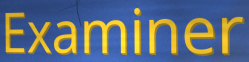
Examiner